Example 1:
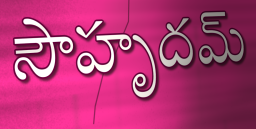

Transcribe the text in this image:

సౌహృదమ్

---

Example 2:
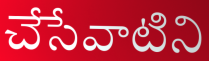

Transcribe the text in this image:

చేసేవాటిని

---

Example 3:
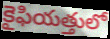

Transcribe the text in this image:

కైఫియత్తులో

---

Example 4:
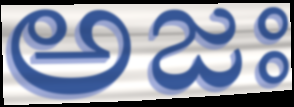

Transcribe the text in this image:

అజః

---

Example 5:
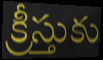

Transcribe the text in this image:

క్రీస్తుకు